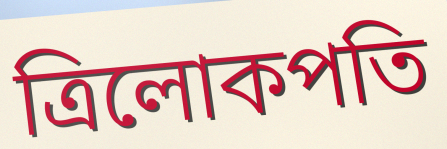
ত্রিলোকপতি